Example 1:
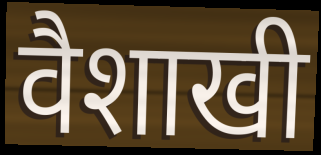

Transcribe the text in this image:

वैशाखी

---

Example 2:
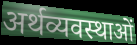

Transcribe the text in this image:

अर्थव्यवस्थाओं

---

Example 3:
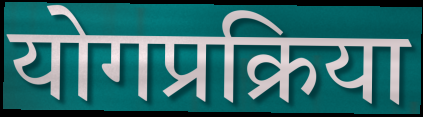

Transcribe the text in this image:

योगप्रक्रिया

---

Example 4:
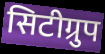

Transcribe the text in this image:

सिटीग्रुप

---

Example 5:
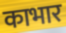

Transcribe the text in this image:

काभार